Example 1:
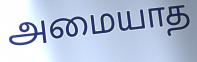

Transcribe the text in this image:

அமையாத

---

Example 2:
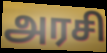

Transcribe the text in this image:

அரசி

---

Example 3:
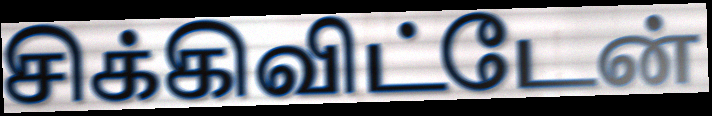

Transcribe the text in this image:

சிக்கிவிட்டேன்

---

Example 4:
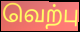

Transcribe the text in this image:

வெற்பு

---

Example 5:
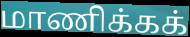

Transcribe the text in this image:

மாணிக்கக்